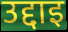
उद्दाइ